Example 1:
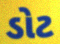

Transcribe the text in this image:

ડોટ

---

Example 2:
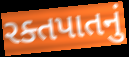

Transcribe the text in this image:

રક્તપાતનું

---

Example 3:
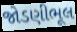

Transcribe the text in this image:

જોડણીભૂલ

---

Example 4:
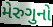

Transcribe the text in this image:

મેરુગુનો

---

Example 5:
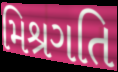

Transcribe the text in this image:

મિશ્રગતિ